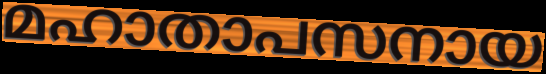
മഹാതാപസനായ